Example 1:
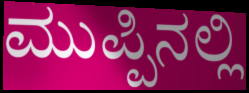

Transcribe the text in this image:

ಮುಪ್ಪಿನಲ್ಲಿ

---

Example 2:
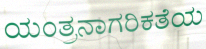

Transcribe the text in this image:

ಯಂತ್ರನಾಗರಿಕತೆಯ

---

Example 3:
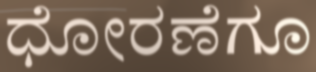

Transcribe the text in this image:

ಧೋರಣೆಗೂ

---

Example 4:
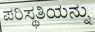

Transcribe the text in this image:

ಪರಿಸ್ಥತಿಯನ್ನು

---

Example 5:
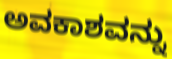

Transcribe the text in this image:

ಅವಕಾಶವನ್ನು